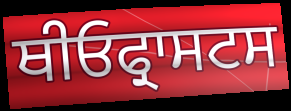
ਥੀਓਫ੍ਰਾਸਟਸ